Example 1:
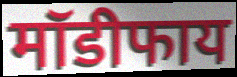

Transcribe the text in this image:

मॉडीफाय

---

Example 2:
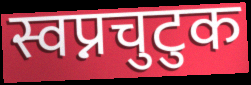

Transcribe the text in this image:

स्वप्नचुटुक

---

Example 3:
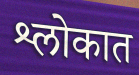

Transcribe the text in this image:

श्लोकात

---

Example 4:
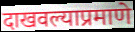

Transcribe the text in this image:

दाखवल्याप्रमाणे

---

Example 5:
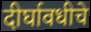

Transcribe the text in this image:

दीर्घावधीचे